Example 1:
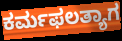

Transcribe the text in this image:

ಕರ್ಮಫಲತ್ಯಾಗ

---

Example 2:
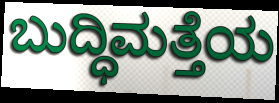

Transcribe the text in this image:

ಬುದ್ಧಿಮತ್ತೆಯ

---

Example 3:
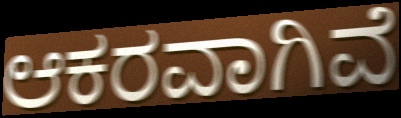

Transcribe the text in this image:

ಆಕರವಾಗಿವೆ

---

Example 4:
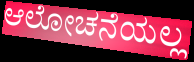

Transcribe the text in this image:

ಆಲೋಚನೆಯಲ್ಲ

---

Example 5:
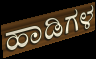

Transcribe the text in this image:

ಹಾಡಿಗಳ